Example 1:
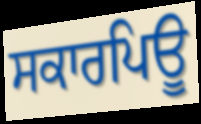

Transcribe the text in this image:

ਸਕਾਰਪਿਊ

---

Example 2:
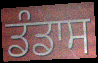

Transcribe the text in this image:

ਡੰਡਾਸ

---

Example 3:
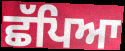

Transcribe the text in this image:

ਛੱਪਿਆ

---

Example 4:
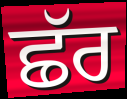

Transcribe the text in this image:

ਛੱਰ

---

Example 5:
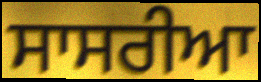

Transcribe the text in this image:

ਸਾਸਰੀਆ